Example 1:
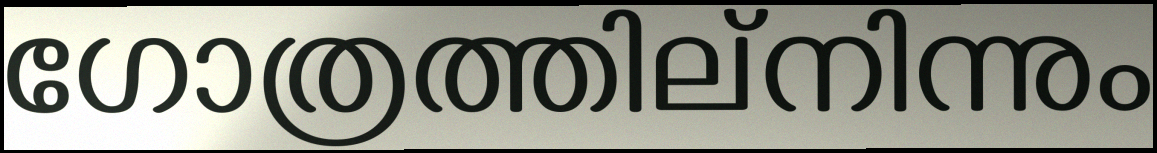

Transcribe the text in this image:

ഗോത്രത്തില്നിന്നും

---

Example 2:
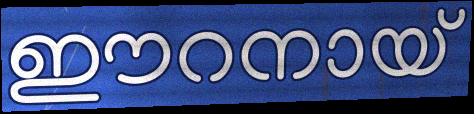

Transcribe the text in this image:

ഈറനായ്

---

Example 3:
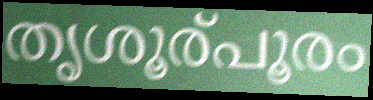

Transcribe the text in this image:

തൃശൂര്പൂരം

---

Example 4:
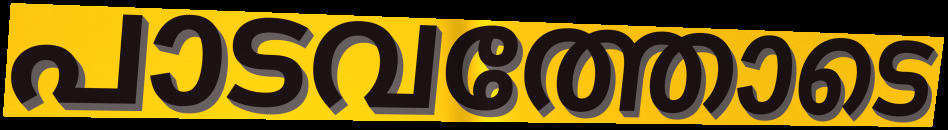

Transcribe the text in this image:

പാടവത്തോടെ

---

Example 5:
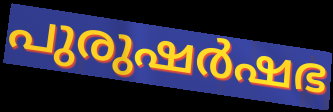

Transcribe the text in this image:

പുരുഷർഷഭ